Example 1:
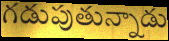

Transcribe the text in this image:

గడుపుతున్నాడు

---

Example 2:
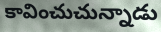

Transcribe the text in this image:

కావించుచున్నాడు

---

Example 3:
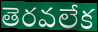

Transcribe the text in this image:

తెరవలేక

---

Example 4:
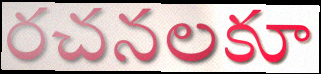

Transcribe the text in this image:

రచనలకూ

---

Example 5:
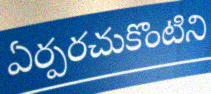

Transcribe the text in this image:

ఏర్పరచుకొంటిని